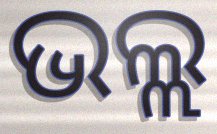
ଭଲ୍ଲ